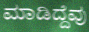
ಮಾಡಿದ್ದೆವು